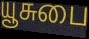
யூசுபை